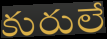
కురులే